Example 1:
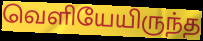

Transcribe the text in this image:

வெளியேயிருந்த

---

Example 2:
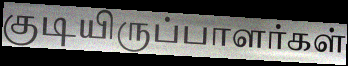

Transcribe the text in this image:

குடியிருப்பாளர்கள்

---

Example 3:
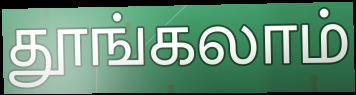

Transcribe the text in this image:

தூங்கலாம்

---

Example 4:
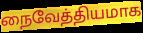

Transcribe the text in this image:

நைவேத்தியமாக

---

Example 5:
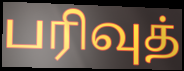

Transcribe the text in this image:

பரிவுத்